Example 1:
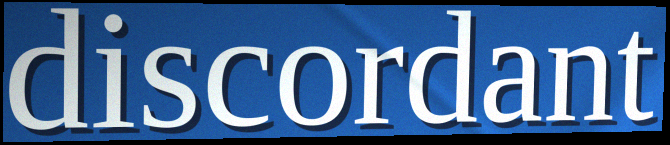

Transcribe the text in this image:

discordant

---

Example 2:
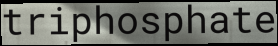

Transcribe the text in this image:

triphosphate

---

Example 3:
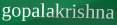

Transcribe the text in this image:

gopalakrishna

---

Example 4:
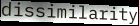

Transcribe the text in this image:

dissimilarity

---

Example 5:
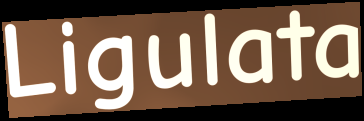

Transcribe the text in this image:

Ligulata